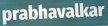
prabhavalkar